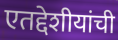
एतद्देशीयांची